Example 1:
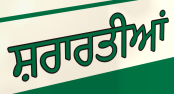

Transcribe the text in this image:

ਸ਼ਰਾਰਤੀਆਂ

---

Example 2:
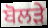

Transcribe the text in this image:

ਬੋਲੜੇ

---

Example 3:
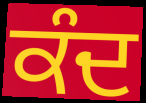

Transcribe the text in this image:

ਕੰਦ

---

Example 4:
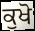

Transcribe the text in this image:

ਕੁਖੋ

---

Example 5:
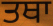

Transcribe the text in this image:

ਤਥਾ